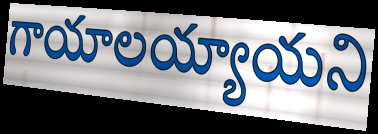
గాయాలయ్యాయని